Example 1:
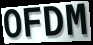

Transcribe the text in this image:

OFDM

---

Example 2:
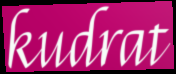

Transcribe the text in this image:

kudrat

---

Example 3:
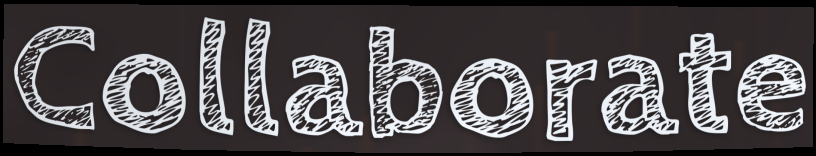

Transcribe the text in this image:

Collaborate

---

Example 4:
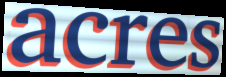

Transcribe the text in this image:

acres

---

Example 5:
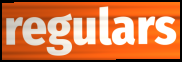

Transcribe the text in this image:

regulars